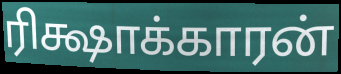
ரிக்ஷாக்காரன்